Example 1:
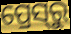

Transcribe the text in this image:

ପ୍ରେସ୍‌ରୁ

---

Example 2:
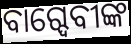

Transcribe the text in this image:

ବାଗ୍ଦେବୀଙ୍କ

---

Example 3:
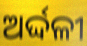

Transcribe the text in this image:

ଅର୍ଦ୍ଦଳୀ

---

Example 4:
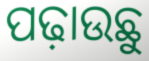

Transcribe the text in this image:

ପଢ଼ାଉଛୁ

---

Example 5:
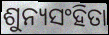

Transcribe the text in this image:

ଶୁନ୍ୟସଂହିତା